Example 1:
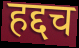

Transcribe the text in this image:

हद्दच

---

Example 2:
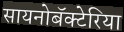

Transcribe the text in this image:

सायनोबॅक्टेरिया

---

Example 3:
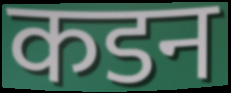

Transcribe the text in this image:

कडन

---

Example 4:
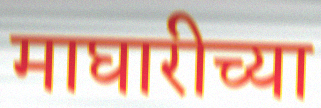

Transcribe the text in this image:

माघारीच्या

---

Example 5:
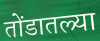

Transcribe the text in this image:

तोंडातल्या